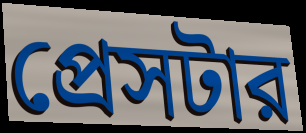
প্রেসটার